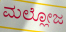
ಮಲ್ಲೋಜ